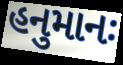
હનુમાનઃ